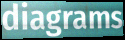
diagrams